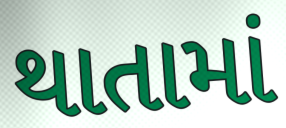
થાતામાં